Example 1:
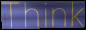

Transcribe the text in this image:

Think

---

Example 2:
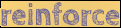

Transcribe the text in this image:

reinforce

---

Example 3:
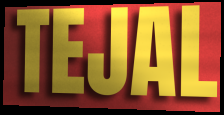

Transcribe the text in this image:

TEJAL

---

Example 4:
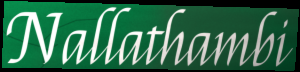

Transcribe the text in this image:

Nallathambi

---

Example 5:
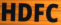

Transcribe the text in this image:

HDFC